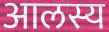
आलस्य